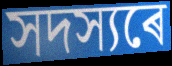
সদস্যৰে